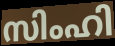
സിംഹി